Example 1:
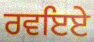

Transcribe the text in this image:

ਰਵਇਏ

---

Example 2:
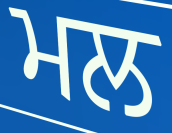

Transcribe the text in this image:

ਮਲ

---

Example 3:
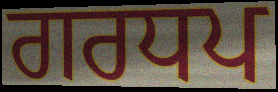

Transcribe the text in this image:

ਗਰਧਪ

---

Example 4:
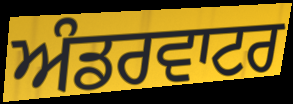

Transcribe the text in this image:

ਅੰਡਰਵਾਟਰ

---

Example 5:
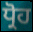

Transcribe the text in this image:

ਧ੍ਰੋਹ